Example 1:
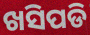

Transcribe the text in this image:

ଖସିପଡି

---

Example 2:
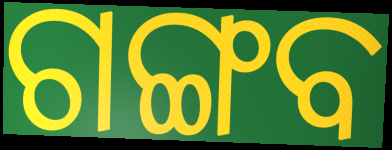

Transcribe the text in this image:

ଗଙ୍ଗବ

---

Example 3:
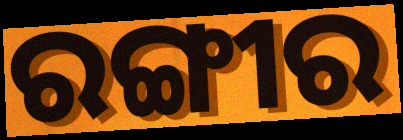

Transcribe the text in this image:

ରଙ୍ଗୀର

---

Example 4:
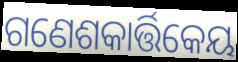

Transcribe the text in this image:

ଗଣେଶକାର୍ତ୍ତିକେୟ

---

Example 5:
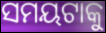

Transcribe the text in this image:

ସମୟଟାକୁ